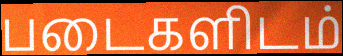
படைகளிடம்